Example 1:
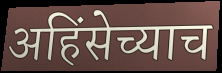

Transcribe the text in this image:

अहिंसेच्याच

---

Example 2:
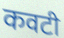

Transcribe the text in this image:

कवटी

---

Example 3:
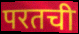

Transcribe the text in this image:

परतची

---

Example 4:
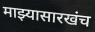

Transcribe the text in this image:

माझ्यासारखंच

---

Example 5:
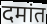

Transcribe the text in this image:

दमांत